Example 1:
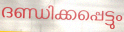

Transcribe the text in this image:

ദണ്ഡിക്കപ്പെട്ടും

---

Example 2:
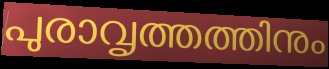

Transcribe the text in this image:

പുരാവൃത്തത്തിനും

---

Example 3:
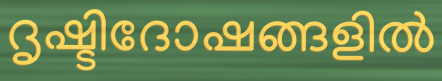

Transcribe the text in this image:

ദൃഷ്ടിദോഷങ്ങളിൽ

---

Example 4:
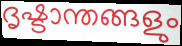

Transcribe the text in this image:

ദൃഷ്ടാന്തങ്ങളും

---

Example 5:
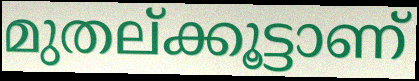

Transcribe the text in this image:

മുതല്ക്കൂട്ടാണ്